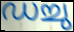
ഡച്ചു